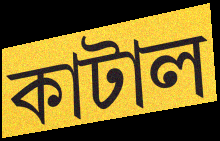
কাটাল